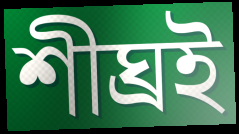
শীঘ্রই